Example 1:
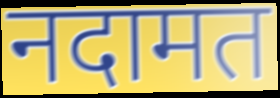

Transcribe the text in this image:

नदामत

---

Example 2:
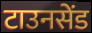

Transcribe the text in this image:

टाउनसेंड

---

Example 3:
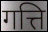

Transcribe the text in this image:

गत्ति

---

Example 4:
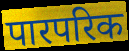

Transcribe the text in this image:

पारपरिक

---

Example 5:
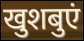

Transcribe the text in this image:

खुशबुएं